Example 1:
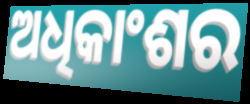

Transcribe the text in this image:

ଅଧିକାଂଶର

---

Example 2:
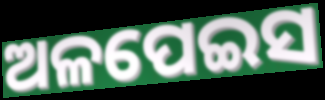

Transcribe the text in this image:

ଅଳପେଇସ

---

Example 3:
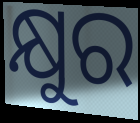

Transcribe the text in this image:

କ୍ଷୁର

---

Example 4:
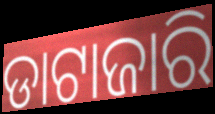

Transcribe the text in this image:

ଡାଟାଜାରି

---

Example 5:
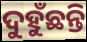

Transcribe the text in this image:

ଦୁହୁଁଛନ୍ତି